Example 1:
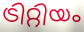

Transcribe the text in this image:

ട്രിറ്റിയം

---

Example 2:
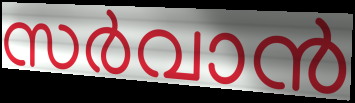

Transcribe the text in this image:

സർവാൻ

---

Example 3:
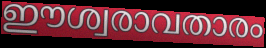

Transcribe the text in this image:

ഈശ്വരാവതാരം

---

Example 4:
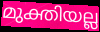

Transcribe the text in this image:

മുക്തിയല്ല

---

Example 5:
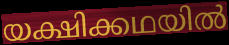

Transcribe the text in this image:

യക്ഷിക്കഥയിൽ